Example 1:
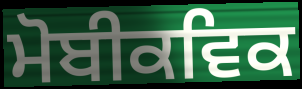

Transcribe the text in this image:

ਮੋਬੀਕਵਿਕ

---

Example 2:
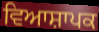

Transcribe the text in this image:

ਵਿਆਸ਼ਾਪਕ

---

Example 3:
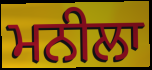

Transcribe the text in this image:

ਮਨੀਲਾ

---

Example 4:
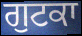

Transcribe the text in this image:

ਗੁਟਕਾ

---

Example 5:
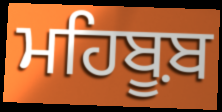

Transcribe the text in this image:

ਮਹਿਬ਼ੂਬ